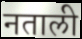
नताली